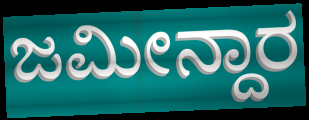
ಜಮೀನ್ದಾರ